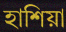
হাশিয়া